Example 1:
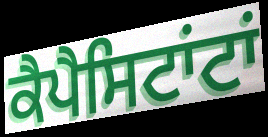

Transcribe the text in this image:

ਕੈਪੈਸਿਟਾਂਟਾਂ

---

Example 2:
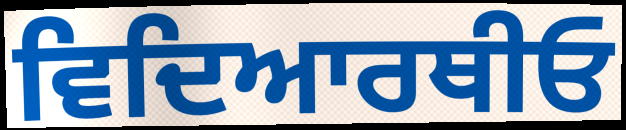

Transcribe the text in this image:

ਵਿਦਿਆਰਥੀਓ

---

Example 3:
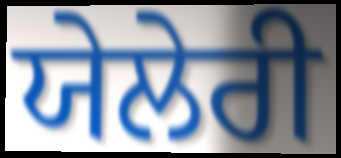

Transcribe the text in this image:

ਯੇਲੇਰੀ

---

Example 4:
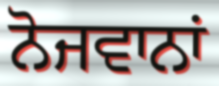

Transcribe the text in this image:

ਨੋਜਵਾਨਾਂ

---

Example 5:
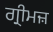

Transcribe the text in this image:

ਗ੍ਰੀਮਜ਼